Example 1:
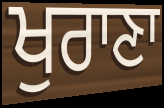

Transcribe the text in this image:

ਖੁਰਾਣਾ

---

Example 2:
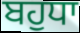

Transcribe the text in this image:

ਬਹੁਧਾ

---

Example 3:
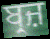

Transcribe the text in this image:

ਬ੍ਰਜ਼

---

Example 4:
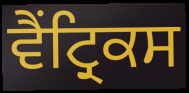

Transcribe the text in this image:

ਵੈਂਟ੍ਰਿਕਸ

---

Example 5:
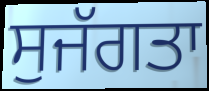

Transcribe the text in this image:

ਸੁਜੱਗਤਾ